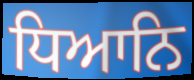
ਧਿਆਨਿ